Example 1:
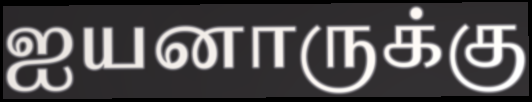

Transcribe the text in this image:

ஐயனாருக்கு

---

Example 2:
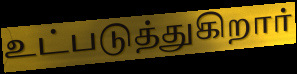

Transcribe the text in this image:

உட்படுத்துகிறார்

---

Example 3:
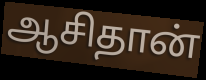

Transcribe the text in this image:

ஆசிதான்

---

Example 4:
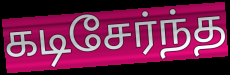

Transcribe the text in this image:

கடிசேர்ந்த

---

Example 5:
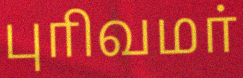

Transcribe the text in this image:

புரிவமர்